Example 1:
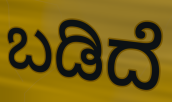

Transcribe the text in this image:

ಬಡಿದೆ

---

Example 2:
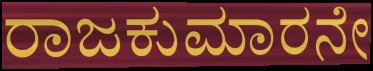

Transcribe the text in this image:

ರಾಜಕುಮಾರನೇ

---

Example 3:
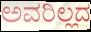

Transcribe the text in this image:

ಅವರಿಲ್ಲದ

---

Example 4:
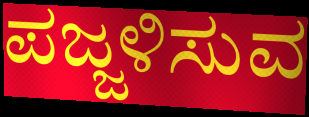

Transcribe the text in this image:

ಪಜ್ಜಳಿಸುವ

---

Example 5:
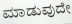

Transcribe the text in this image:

ಮಾಡುವುದೇ